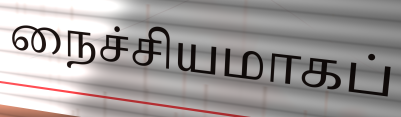
நைச்சியமாகப்